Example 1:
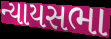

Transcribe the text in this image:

ન્યાયસભા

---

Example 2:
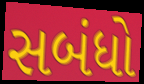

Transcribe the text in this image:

સબંધો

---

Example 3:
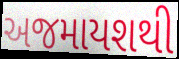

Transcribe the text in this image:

અજમાયશથી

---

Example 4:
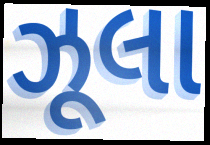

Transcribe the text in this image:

ઝૂલા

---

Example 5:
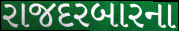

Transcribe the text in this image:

રાજદરબારના